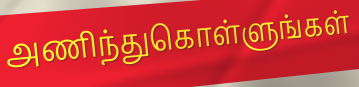
அணிந்துகொள்ளுங்கள்